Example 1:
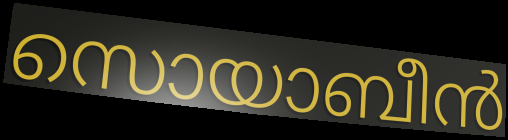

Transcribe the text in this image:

സൊയാബീൻ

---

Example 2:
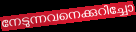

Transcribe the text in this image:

നേടുന്നവനെക്കുറിച്ചോ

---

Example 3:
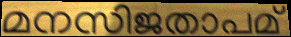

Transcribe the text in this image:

മനസിജതാപമ്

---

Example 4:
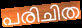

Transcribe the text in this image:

പരിചിത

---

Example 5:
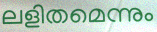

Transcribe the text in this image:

ലളിതമെന്നും